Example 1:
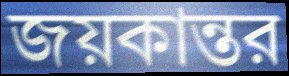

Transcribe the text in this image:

জয়কান্তর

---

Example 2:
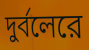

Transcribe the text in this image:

দুর্বলেরে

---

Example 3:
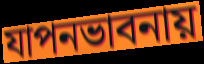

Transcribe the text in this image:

যাপনভাবনায়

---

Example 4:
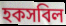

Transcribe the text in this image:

হকসবিল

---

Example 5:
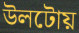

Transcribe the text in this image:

উলটোয়